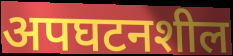
अपघटनशील